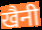
खैनी